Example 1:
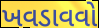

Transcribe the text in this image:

ખવડાવવો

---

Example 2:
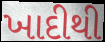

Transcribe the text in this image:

ખાદીથી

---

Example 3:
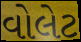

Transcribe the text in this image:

વોલેટ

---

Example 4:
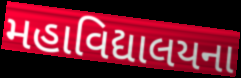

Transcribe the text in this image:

મહાવિદ્યાલયના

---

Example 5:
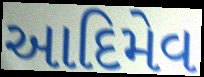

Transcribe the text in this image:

આદિમેવ